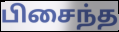
பிசைந்த